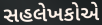
સહલેખકોએ